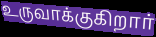
உருவாக்குகிறார்